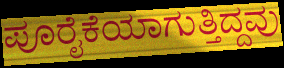
ಪೂರೈಕೆಯಾಗುತ್ತಿದ್ದವು